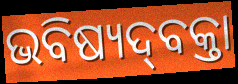
ଭବିଷ୍ୟଦ୍‌ବକ୍ତା